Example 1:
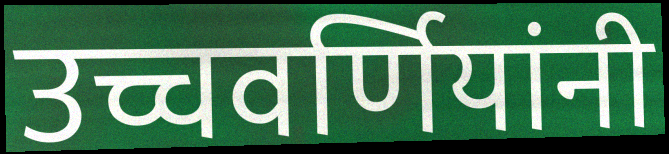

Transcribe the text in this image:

उच्चवर्णियांनी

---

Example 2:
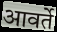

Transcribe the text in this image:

आवर्ते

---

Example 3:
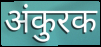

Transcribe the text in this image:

अंकुरक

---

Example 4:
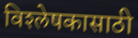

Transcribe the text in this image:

विश्लेषकासाठी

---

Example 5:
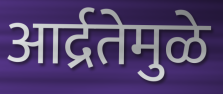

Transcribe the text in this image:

आर्द्रतेमुळे